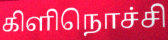
கிளிநொச்சி